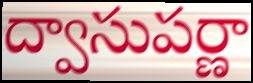
ద్వాసుపర్ణా